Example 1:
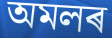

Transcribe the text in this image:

অমলৰ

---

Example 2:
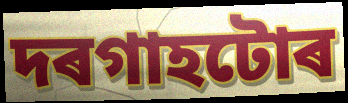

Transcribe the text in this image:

দৰগাহটোৰ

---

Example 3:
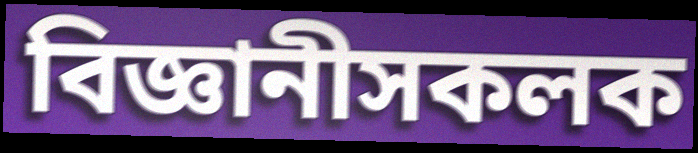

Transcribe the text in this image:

বিজ্ঞানীসকলক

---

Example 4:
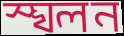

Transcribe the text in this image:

স্খলন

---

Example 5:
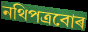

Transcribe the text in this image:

নথিপত্ৰবোৰ